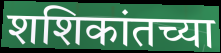
शशिकांतच्या